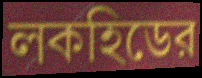
লকহিডের